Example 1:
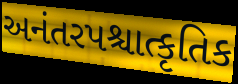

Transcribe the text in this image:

અનંતરપશ્ચાત્કૃતિક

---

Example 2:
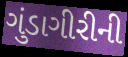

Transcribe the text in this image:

ગુંડાગીરીની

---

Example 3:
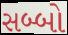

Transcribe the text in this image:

સબ્બો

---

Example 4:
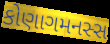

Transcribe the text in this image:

કોણાગમનસ્સ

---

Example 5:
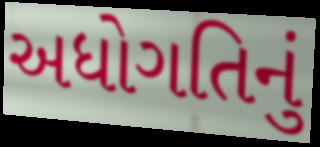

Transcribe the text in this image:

અધોગતિનું